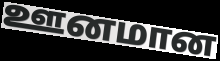
ஊனமான